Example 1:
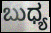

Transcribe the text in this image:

ಬುಧ್ಯ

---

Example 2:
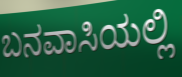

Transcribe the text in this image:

ಬನವಾಸಿಯಲ್ಲಿ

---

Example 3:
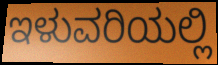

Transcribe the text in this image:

ಇಳುವರಿಯಲ್ಲಿ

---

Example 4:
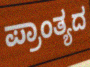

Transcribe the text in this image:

ಪ್ರಾಂತ್ಯದ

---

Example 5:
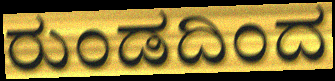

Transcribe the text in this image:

ರುಂಡದಿಂದ